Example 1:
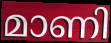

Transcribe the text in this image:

മാണി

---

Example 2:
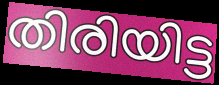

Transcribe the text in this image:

തിരിയിട്ട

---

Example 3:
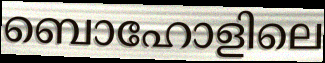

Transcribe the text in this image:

ബൊഹോളിലെ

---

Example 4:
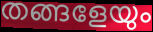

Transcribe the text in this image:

തങ്ങളേയും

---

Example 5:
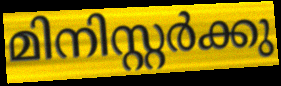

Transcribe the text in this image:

മിനിസ്റ്റർക്കു